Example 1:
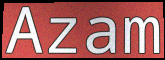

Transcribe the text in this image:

Azam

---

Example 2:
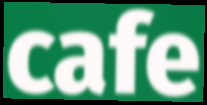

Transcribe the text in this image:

cafe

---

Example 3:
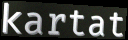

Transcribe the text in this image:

kartat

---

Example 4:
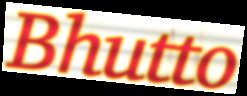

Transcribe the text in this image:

Bhutto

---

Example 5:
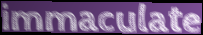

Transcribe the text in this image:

immaculate